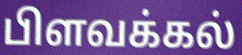
பிளவக்கல்